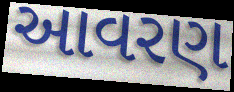
આવરણ